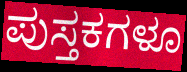
ಪುಸ್ತಕಗಳೂ